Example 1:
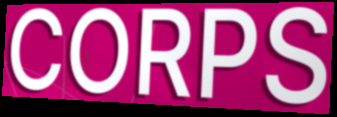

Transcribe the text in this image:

CORPS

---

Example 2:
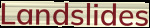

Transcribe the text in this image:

Landslides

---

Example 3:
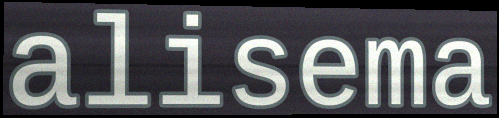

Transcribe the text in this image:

alisema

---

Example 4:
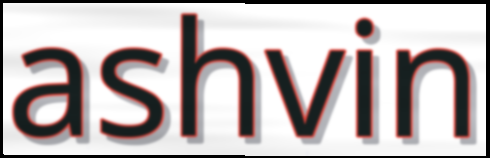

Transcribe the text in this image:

ashvin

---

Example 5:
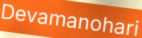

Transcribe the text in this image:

Devamanohari